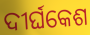
ଦୀର୍ଘକେଶ